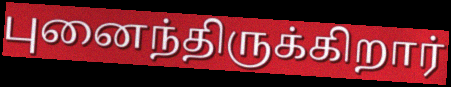
புனைந்திருக்கிறார்